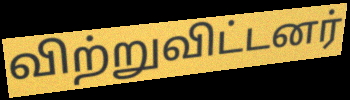
விற்றுவிட்டனர்